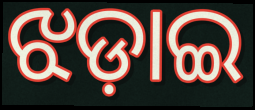
ଝଡ଼ାଇ